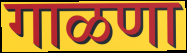
गाळणा